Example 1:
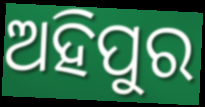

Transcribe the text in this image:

ଅହିପୁର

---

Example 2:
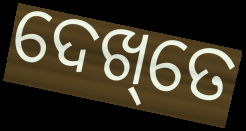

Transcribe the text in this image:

ଦେଖ୍‌ତେ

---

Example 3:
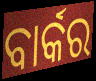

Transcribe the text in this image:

ବାର୍କର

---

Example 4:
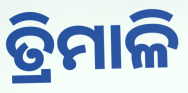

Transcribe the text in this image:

ତ୍ରିମାଳି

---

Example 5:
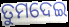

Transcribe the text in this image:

ତୁମଦେଇ